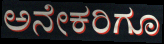
ಅನೇಕರಿಗೂ